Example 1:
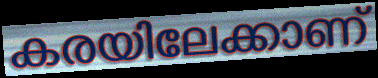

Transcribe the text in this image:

കരയിലേക്കാണ്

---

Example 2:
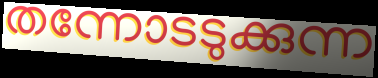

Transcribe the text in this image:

തന്നോടടുക്കുന്ന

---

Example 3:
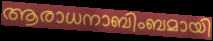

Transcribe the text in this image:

ആരാധനാബിംബമായി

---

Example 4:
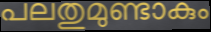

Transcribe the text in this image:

പലതുമുണ്ടാകും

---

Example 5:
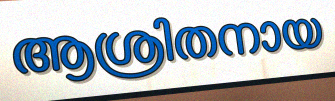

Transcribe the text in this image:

ആശ്രിതനായ